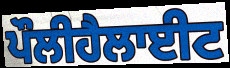
ਪੌਲੀਹੈਲਾਈਟ